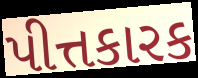
પીત્તકારક